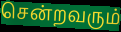
சென்றவரும்